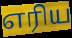
எரிய